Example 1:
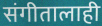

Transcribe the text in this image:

संगीतालाही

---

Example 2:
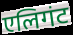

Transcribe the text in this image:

एलिगंट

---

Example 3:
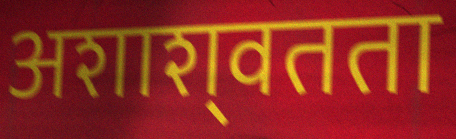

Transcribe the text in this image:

अशाश्वतता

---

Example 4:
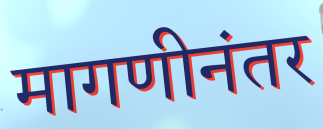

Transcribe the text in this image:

मागणीनंतर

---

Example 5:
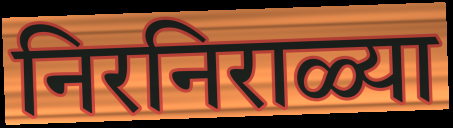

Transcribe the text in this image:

निरनिराळ्या